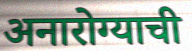
अनारोग्याची